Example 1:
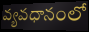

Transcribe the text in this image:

వ్యవధానంలో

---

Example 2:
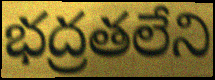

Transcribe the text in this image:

భద్రతలేని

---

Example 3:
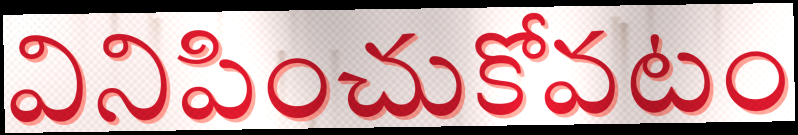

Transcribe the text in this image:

వినిపించుకోవటం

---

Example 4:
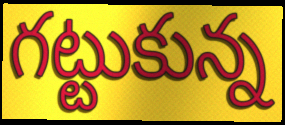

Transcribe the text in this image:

గట్టుకున్న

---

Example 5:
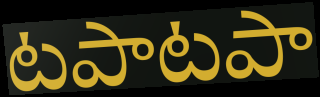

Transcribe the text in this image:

టపాటపా